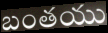
బంతయు